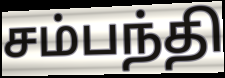
சம்பந்தி